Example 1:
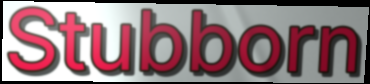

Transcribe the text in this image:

Stubborn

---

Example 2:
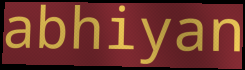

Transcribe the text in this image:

abhiyan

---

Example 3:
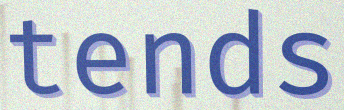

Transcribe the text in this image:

tends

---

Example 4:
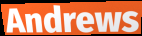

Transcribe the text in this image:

Andrews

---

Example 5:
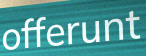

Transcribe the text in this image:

offerunt